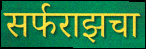
सर्फराझचा